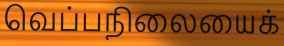
வெப்பநிலையைக்